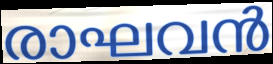
രാഘവൻ